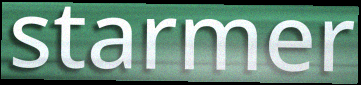
starmer